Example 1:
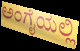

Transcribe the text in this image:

ಅಂಗೈಯಲ್ಲಿ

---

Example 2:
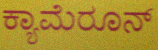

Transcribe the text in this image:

ಕ್ಯಾಮೆರೂನ್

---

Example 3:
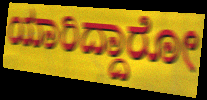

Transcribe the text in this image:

ಯಾರಿದ್ದಾರೋ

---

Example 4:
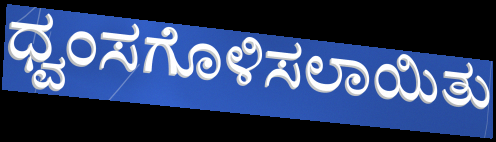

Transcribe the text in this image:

ಧ್ವಂಸಗೊಳಿಸಲಾಯಿತು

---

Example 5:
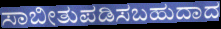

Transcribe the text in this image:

ಸಾಬೀತುಪಡಿಸಬಹುದಾದ